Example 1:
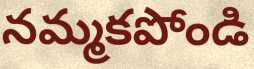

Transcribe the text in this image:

నమ్మకపోండి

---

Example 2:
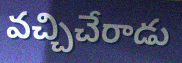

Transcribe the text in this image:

వచ్చిచేరాడు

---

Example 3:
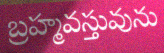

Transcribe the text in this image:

బ్రహ్మవస్తువును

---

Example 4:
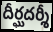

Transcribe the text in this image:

దీర్ఘదర్శీ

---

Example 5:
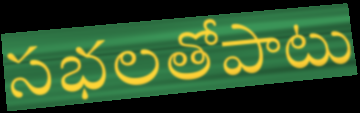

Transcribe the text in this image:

సభలతోపాటు